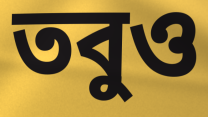
তবুও